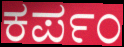
ಕರ್ಪಂ